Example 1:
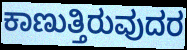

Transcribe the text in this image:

ಕಾಣುತ್ತಿರುವುದರ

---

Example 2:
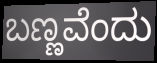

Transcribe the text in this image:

ಬಣ್ಣವೆಂದು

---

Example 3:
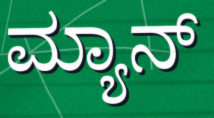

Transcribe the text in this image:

ಮ್ಯಾನ್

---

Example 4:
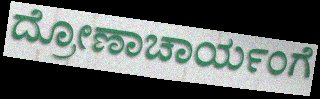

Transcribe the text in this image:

ದ್ರೋಣಾಚಾರ್ಯಂಗೆ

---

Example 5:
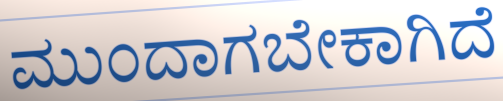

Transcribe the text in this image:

ಮುಂದಾಗಬೇಕಾಗಿದೆ